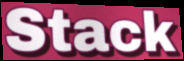
Stack